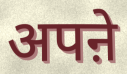
अपऩे